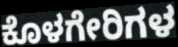
ಕೊಳಗೇರಿಗಳ